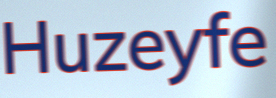
Huzeyfe